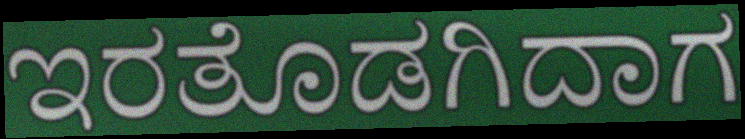
ಇರತೊಡಗಿದಾಗ